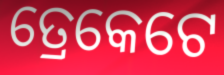
ତ୍ରେକେଟେ